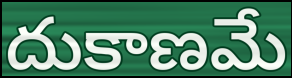
దుకాణమే